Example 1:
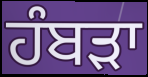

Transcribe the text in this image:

ਹੰਬਡ਼ਾ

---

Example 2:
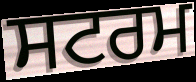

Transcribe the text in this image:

ਸਟਰਮ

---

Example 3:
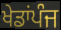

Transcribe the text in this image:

ਖੇਡਾਂਪੰਜ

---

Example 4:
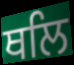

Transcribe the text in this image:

ਥਲਿ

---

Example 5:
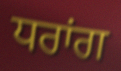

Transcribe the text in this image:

ਧਰਾਂਗ